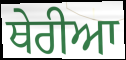
ਥੇਰੀਆ